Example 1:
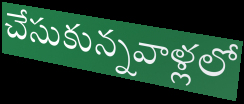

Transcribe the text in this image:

చేసుకున్నవాళ్లలో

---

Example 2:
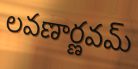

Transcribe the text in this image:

లవణార్ణవమ్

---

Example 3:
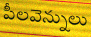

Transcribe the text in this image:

పీలవెన్నులు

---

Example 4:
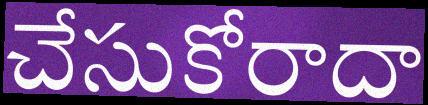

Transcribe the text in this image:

చేసుకోరాదా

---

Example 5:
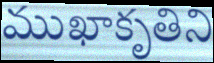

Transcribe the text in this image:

ముఖాకృతిని